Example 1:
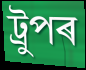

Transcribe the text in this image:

ট্ৰুপৰ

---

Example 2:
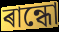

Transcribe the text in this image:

ৰান্ধো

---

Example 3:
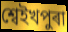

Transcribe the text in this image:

শ্বেইখপুৰা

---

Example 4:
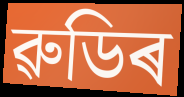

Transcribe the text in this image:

ৱুডিৰ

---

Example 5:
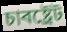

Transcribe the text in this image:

চাবষ্ট্ৰেট